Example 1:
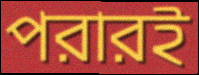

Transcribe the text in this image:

পরারই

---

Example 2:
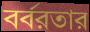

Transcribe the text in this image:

বর্বরতার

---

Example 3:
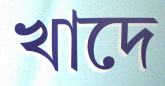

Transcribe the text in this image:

খাদে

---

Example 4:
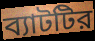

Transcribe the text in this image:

ব্যাটটির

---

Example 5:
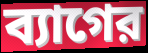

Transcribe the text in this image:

ব্যাগের